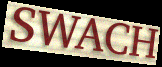
SWACH